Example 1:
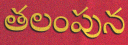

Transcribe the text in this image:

తలంపున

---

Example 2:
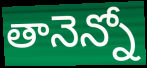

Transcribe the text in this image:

తానెన్నో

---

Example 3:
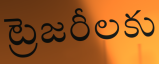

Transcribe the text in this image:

ట్రెజరీలకు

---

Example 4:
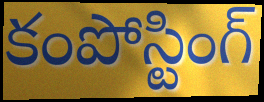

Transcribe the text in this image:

కంపోస్టింగ్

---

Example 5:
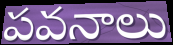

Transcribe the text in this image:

పవనాలు